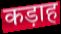
कड़ाह